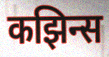
कझिन्स